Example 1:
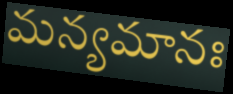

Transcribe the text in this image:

మన్యమానః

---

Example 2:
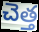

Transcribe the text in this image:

చెత్త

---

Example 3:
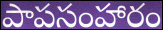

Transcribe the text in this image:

పాపసంహారం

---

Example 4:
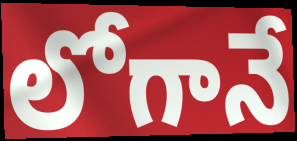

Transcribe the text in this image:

లోగానే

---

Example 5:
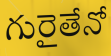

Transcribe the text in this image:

గురైతేనో